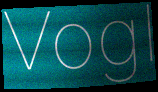
Vogl